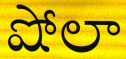
షోలా